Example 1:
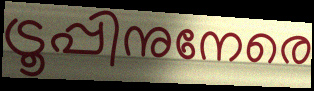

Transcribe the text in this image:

ട്രൂപ്പിനുനേരെ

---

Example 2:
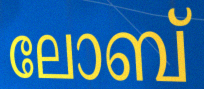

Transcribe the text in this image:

ലോബ്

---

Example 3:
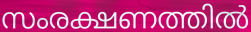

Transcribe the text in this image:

സംരക്ഷണത്തിൽ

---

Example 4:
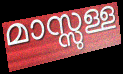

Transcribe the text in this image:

മാസ്സുള്ള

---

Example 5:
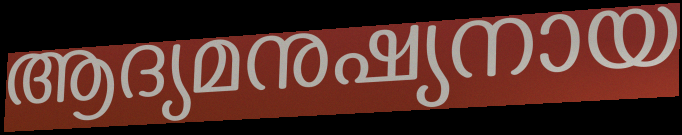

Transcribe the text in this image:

ആദ്യമനുഷ്യനായ